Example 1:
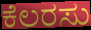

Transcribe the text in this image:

ಕೆಲರಸು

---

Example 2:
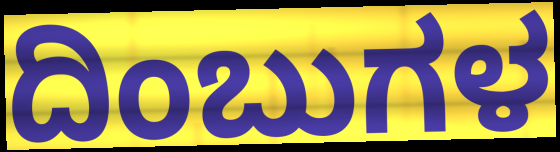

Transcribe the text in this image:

ದಿಂಬುಗಳ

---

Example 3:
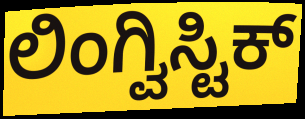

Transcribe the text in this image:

ಲಿಂಗ್ವಿಸ್ಟಿಕ್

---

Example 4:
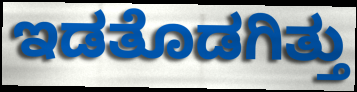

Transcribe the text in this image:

ಇಡತೊಡಗಿತ್ತು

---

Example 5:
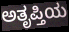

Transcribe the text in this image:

ಅತೃಪ್ತಿಯ